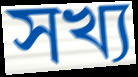
সখ্য